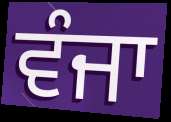
ਵੰਜਾ